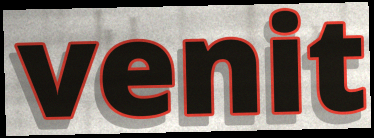
venit